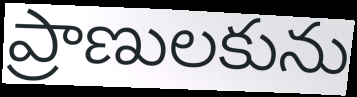
ప్రాణులకును